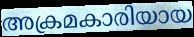
അക്രമകാരിയായ